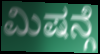
ಮಿಷನ್ಗೆ